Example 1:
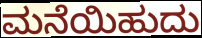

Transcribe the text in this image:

ಮನೆಯಿಹುದು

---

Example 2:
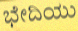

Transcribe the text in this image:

ಭೇದಿಯು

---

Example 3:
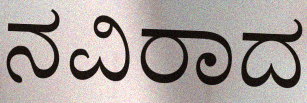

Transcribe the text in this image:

ನವಿರಾದ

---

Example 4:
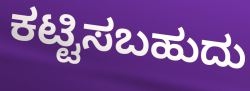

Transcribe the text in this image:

ಕಟ್ಟಿಸಬಹುದು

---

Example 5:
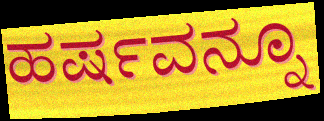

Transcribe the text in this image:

ಹರ್ಷವನ್ನೂ